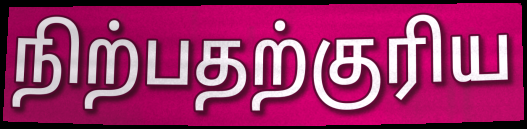
நிற்பதற்குரிய